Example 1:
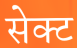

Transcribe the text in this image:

सेक्ट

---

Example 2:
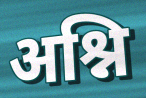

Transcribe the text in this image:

अश्नि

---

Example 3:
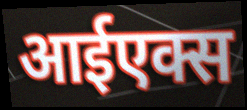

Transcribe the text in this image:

आईएक्स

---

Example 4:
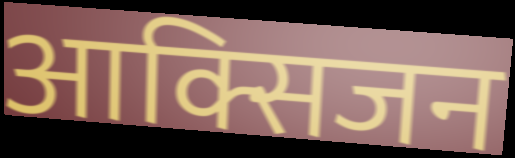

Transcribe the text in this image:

आक्सिजन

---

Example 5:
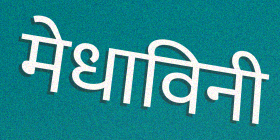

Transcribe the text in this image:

मेधाविनी